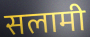
सलामी